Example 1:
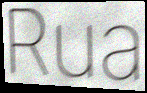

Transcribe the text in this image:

Rua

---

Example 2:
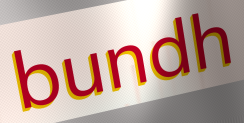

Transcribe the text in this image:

bundh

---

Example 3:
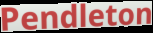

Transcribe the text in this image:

Pendleton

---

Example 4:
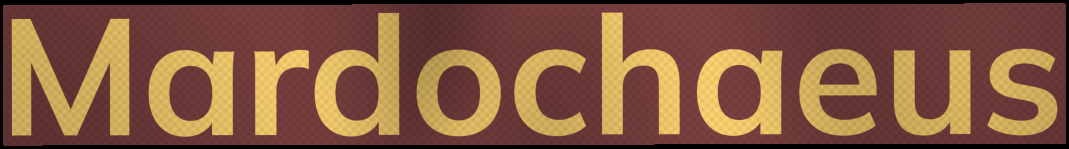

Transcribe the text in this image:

Mardochaeus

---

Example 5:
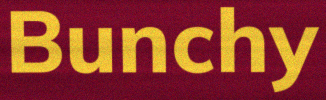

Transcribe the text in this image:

Bunchy